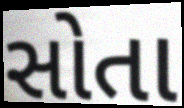
સોતા